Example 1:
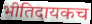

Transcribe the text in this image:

भीतिदायकच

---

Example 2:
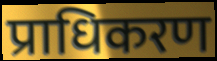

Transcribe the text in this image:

प्राधिकरण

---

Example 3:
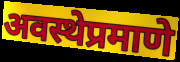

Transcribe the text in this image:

अवस्थेप्रमाणे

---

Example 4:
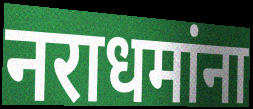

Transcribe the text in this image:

नराधमांना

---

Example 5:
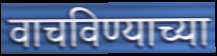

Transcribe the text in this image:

वाचविण्याच्या